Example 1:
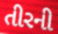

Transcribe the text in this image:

તીરની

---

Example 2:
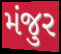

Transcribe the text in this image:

મંજુર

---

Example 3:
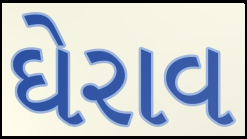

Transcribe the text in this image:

ઘેરાવ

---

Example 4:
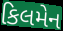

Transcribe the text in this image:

કિલમેન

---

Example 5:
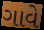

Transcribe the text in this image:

ગાવે